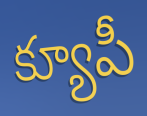
క్యూపీ